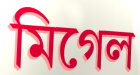
মিগেল